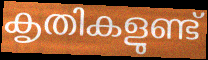
കൃതികളുണ്ട്